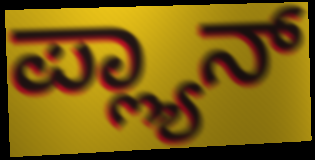
ಪ್ಲ್ಯಾನ್